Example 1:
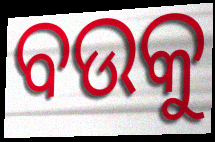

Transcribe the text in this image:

ବଉକୁ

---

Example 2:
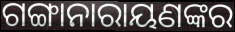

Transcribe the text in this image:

ଗଙ୍ଗାନାରାୟଣଙ୍କର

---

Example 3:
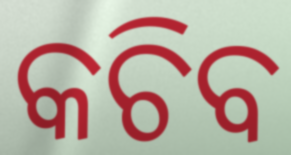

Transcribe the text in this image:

କଚିବ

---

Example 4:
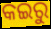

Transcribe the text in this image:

କଇରୁ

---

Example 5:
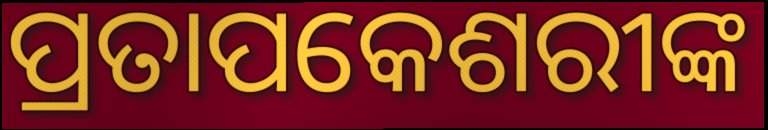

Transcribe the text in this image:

ପ୍ରତାପକେଶରୀଙ୍କ